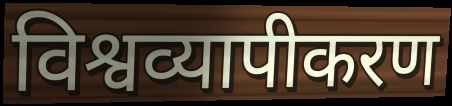
विश्वव्यापीकरण